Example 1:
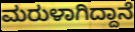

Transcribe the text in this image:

ಮರುಳಾಗಿದ್ದಾನೆ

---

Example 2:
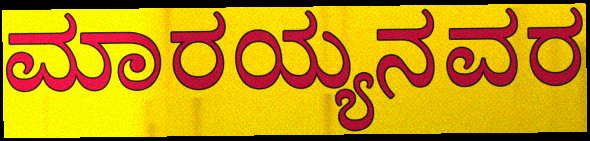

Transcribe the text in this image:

ಮಾರಯ್ಯನವರ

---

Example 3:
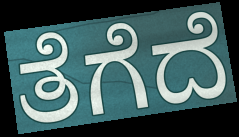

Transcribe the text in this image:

ತೆಗೆದೆ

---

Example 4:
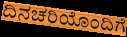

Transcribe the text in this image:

ದಿನಚರಿಯೊಂದಿಗೆ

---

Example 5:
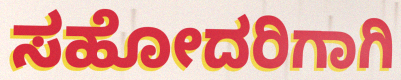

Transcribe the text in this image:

ಸಹೋದರಿಗಾಗಿ